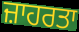
ਜ਼ਾਹਰਤਾ